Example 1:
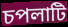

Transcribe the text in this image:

চপলাটি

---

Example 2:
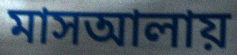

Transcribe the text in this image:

মাসআলায়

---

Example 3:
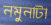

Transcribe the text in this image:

নমুনাটা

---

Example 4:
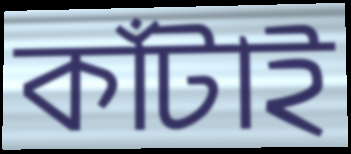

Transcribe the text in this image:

কাঁটাই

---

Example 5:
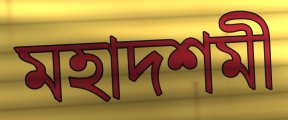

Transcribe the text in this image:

মহাদশমী